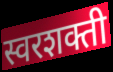
स्वरशक्ती